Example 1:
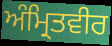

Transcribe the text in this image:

ਅੰਮ੍ਰਿਤਵੀਰ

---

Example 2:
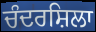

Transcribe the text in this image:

ਚੰਦਰਸ਼ਿਲਾ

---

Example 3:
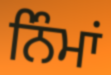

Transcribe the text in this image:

ਨਿੰਮਾਂ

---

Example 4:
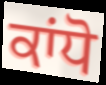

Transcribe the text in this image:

ਕਾਂਧੋ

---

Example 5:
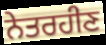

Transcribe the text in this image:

ਨੇਤਰਹੀਣ